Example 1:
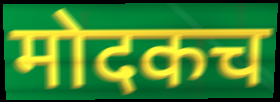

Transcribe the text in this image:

मोदकच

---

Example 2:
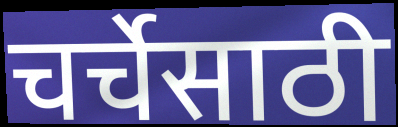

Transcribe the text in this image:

चर्चेसाठी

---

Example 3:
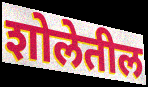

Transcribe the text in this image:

शोलेतील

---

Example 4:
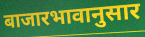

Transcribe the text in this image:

बाजारभावानुसार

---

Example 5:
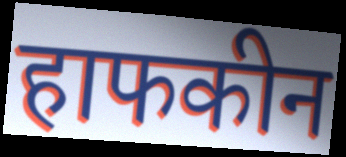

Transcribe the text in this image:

हाफकीन